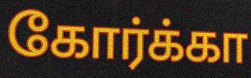
கோர்க்கா